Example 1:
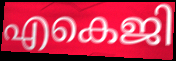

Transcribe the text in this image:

എകെജി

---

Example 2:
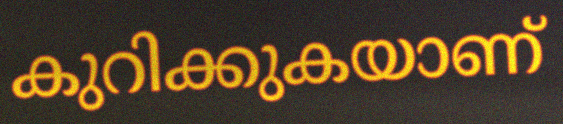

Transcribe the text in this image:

കുറിക്കുകയാണ്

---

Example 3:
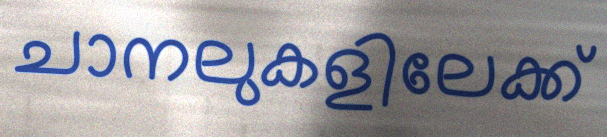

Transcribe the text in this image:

ചാനലുകളിലേക്ക്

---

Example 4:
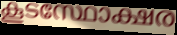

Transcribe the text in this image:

കൂടസ്ഥോക്ഷര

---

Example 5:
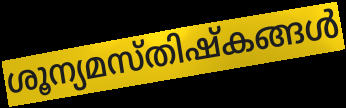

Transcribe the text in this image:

ശൂന്യമസ്തിഷ്കങ്ങൾ